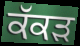
ਕੱਕੜ